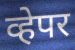
व्हेपर